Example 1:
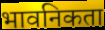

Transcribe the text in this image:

भावनिकता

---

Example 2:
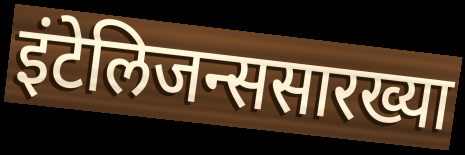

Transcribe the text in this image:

इंटेलिजन्ससारख्या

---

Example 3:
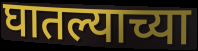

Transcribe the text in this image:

घातल्याच्या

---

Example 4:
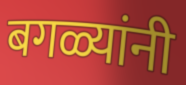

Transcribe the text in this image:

बगळ्यांनी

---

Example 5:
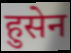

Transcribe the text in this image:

हुसेन